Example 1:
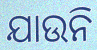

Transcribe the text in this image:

ଯାଉନି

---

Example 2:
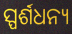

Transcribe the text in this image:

ସ୍ପର୍ଶଧନ୍ୟ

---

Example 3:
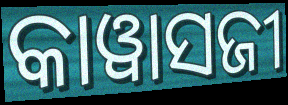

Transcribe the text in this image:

କାୱାସଜୀ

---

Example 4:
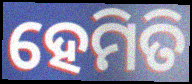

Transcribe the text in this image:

ହେମିତି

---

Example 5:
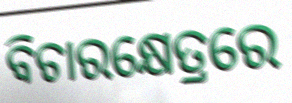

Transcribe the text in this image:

ବିଚାରକ୍ଷେତ୍ରରେ